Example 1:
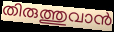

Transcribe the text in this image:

തിരുത്തുവാൻ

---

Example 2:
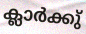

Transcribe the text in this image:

ക്ലാർക്കു്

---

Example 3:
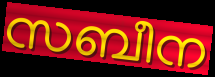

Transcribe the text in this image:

സബീന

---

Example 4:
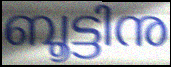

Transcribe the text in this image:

ബൂട്ടിനു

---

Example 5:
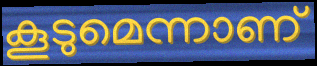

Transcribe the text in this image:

കൂടുമെന്നാണ്